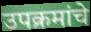
उपक्रमांचे